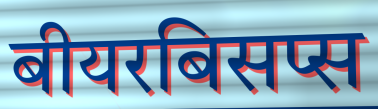
बीयरबिसप्स